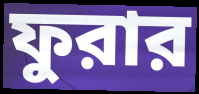
ফুরার